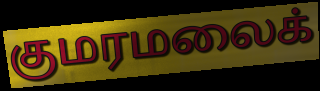
குமரமலைக்